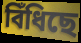
বিঁধিছে